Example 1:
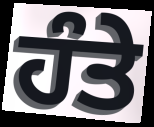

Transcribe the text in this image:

ਹੰਤੇ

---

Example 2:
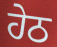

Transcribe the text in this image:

ਹੇਠ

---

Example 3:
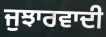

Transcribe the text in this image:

ਜੁਝਾਰਵਾਦੀ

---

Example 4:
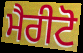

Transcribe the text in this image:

ਮੈਰੀਟੋ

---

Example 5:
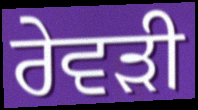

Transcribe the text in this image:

ਰੇਵੜੀ